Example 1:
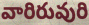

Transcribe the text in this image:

వారిరువురి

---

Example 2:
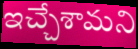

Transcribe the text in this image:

ఇచ్చేశామని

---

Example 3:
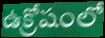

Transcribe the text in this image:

ఉక్రోషంలో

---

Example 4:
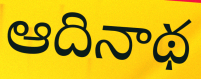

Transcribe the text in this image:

ఆదినాథ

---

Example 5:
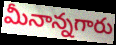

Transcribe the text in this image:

మీనాన్నగారు